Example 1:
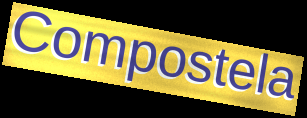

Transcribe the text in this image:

Compostela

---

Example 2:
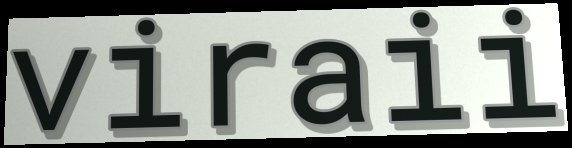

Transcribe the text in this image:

viraii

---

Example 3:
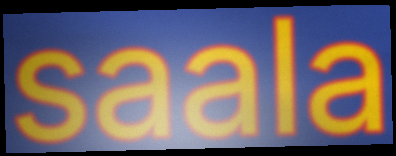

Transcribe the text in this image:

saala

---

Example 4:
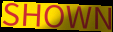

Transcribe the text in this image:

SHOWN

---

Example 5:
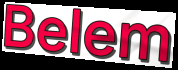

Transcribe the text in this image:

Belem